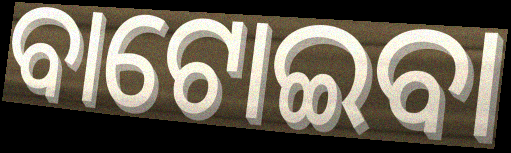
ବାଟୋଇବା